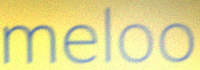
meloo